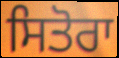
ਸਿਤੋਰਾ